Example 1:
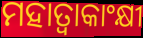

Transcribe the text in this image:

ମହାତ୍ୱାକାଂକ୍ଷୀ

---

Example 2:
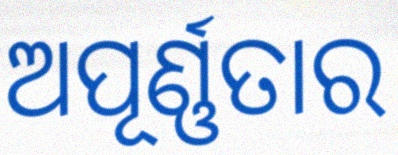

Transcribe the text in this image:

ଅପୂର୍ଣ୍ଣତାର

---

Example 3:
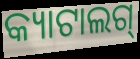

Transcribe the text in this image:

କ୍ୟାଟାଲଗ୍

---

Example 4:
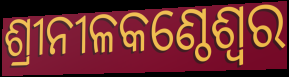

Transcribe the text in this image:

ଶ୍ରୀନୀଳକଣ୍ଠେଶ୍ଵର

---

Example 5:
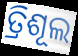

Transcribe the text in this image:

ତ୍ରିଶୂଲ